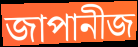
জাপানীজ